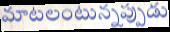
మాటలంటున్నప్పుడు